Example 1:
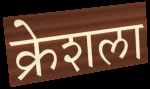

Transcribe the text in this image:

क्रेशला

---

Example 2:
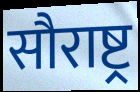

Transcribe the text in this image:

सौराष्ट्र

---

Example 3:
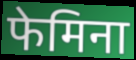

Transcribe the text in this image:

फेमिना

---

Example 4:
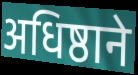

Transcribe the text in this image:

अधिष्ठाने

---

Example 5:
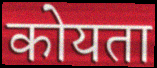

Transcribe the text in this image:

कोयता